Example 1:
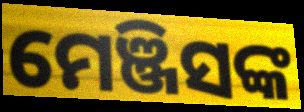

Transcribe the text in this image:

ମେଞ୍ଜିସଙ୍କ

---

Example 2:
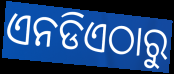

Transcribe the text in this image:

ଏନଡିଏଠାରୁ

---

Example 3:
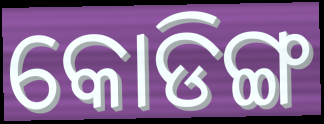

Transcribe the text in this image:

କୋଡିଙ୍ଗ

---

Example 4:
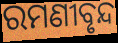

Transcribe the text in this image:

ରମଣୀବୃନ୍ଦ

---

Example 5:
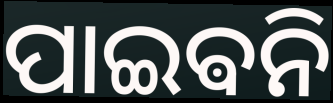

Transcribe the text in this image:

ପାଇଵନି